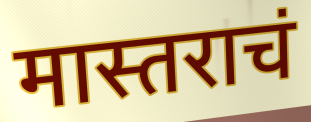
मास्तराचं